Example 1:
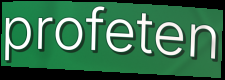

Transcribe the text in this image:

profeten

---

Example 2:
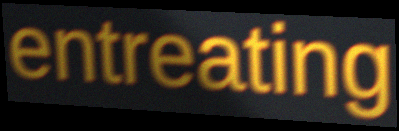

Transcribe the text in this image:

entreating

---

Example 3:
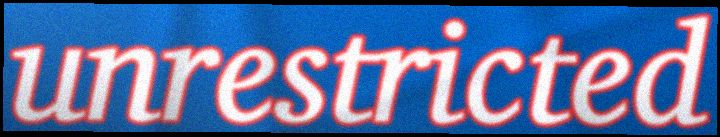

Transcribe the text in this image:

unrestricted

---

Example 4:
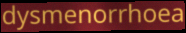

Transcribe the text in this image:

dysmenorrhoea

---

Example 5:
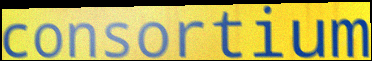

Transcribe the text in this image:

consortium